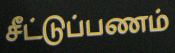
சீட்டுப்பணம்